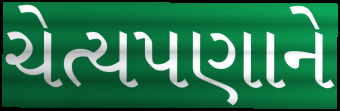
ચેત્યપણાને